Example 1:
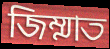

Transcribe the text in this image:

জিম্মাত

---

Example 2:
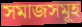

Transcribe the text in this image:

সমাজসমূহ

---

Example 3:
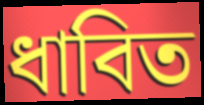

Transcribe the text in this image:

ধাবিত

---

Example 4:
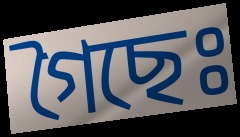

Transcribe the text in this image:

গৈছেঃ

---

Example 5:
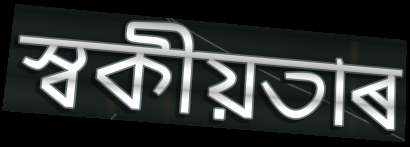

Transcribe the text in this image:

স্বকীয়তাৰ